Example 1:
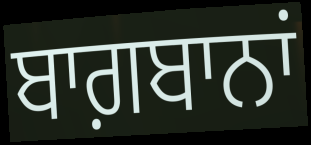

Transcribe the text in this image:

ਬਾਗ਼ਬਾਨਾਂ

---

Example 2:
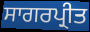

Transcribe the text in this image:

ਸਾਗਰਪ੍ਰੀਤ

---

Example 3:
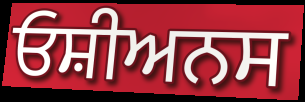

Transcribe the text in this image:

ਓਸ਼ੀਅਨਸ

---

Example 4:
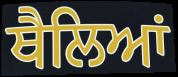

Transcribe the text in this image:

ਥੈਲਿਆਂ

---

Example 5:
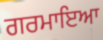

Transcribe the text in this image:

ਗਰਮਾਇਆ